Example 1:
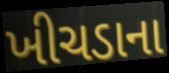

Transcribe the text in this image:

ખીચડાના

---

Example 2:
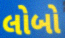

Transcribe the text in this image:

લોબો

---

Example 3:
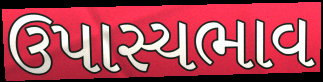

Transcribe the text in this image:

ઉપાસ્યભાવ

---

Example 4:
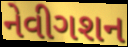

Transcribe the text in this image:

નેવીગશન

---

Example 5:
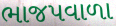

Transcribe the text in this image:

ભાજપવાળા